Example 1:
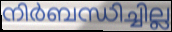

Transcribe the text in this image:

നിർബന്ധിച്ചില്ല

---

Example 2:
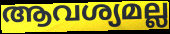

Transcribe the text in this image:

ആവശ്യമല്ല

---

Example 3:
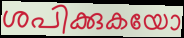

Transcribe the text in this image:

ശപിക്കുകയോ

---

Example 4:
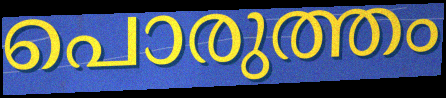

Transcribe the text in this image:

പൊരുത്തം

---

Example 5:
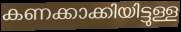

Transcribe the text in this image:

കണക്കാക്കിയിട്ടുള്ള